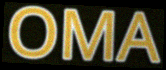
OMA